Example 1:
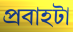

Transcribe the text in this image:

প্রবাহটা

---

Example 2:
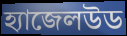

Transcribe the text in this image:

হ্যাজেলউড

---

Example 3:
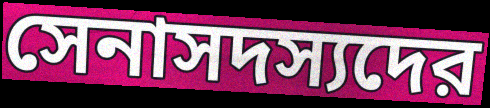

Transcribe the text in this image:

সেনাসদস্যদের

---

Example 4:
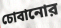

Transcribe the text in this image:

চোবানোর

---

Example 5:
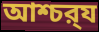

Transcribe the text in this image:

আশ্চর্‍য